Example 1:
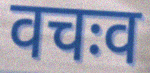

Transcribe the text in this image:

वचःव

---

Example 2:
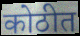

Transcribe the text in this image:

कोठीत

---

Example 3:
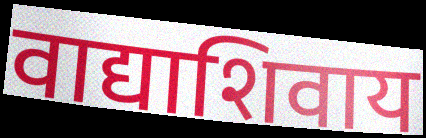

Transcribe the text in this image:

वाद्याशिवाय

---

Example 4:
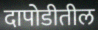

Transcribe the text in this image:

दापोडीतील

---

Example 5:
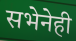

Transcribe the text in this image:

सभेनेही